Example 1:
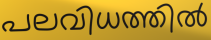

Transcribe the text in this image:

പലവിധത്തിൽ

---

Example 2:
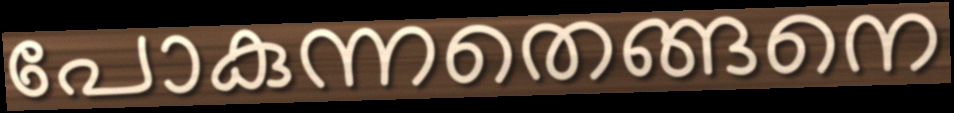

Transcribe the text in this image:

പോകുന്നതെങ്ങനെ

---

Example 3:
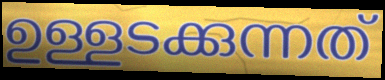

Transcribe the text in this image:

ഉള്ളടക്കുന്നത്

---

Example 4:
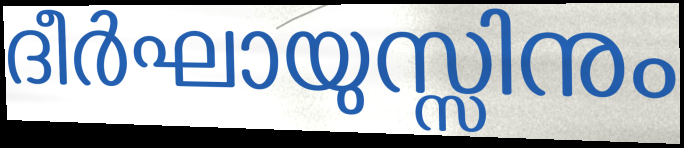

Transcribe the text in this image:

ദീർഘായുസ്സിനും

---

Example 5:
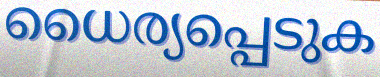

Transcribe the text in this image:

ധൈര്യപ്പെടുക